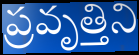
ప్రవృత్తిని